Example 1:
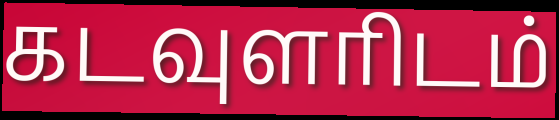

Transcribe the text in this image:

கடவுளரிடம்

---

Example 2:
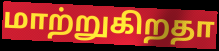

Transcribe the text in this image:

மாற்றுகிறதா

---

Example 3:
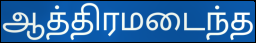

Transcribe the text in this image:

ஆத்திரமடைந்த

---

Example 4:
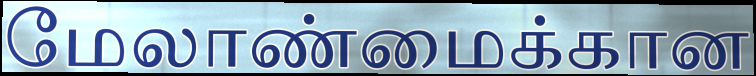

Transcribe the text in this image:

மேலாண்மைக்கான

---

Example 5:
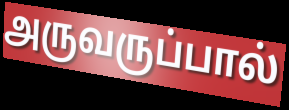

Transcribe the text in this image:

அருவருப்பால்